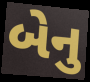
બેનુ